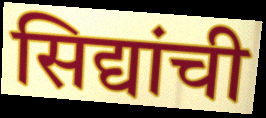
सिद्यांची